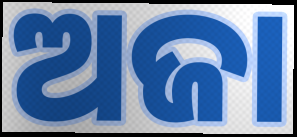
ଅଜା